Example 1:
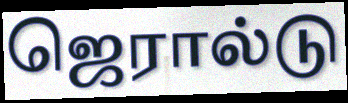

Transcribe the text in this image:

ஜெரால்டு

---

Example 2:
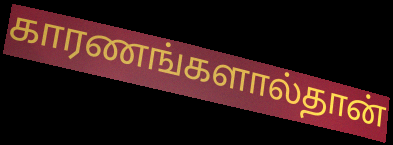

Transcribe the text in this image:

காரணங்களால்தான்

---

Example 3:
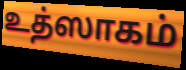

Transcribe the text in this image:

உத்ஸாகம்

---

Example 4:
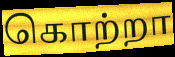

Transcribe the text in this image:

கொற்றா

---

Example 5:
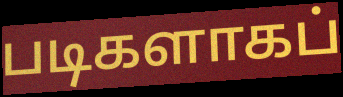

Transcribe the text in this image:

படிகளாகப்